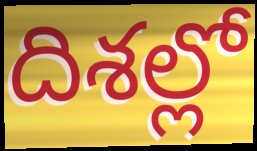
దిశల్లో